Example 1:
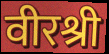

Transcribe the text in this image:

वीरश्री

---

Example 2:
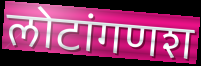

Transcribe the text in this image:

लोटांगणश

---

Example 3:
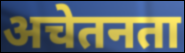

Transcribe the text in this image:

अचेतनता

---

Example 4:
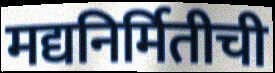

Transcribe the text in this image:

मद्यनिर्मितीची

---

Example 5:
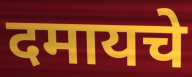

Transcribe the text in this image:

दमायचे